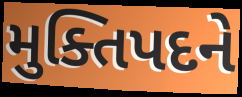
મુક્તિપદને